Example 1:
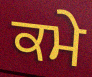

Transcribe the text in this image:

ਕਮੇ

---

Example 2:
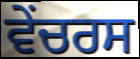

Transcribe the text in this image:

ਵੇਂਚਰਸ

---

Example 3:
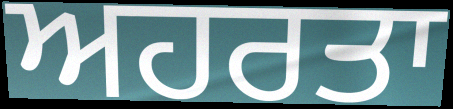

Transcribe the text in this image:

ਅਹਰਤਾ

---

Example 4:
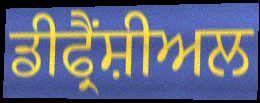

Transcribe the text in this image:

ਡੀਫ੍ਰੈਂਸ਼ੀਅਲ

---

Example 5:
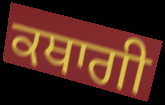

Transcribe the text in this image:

ਕਥਾਗੀ